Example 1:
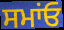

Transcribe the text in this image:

ਸਮਾਂਓ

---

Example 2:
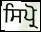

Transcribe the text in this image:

ਸਿਪ੍ਰੋ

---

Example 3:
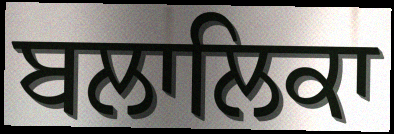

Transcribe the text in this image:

ਬਲਾਲਿਕਾ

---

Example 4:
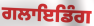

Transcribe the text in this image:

ਗਲਾਇਡਿੰਗ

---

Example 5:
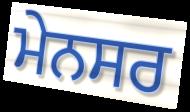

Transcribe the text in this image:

ਮੇਨਸਰ